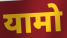
यामो